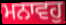
ਮਨਾਵਹੁ